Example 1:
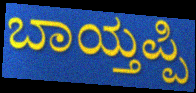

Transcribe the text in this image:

ಬಾಯ್ತಪ್ಪಿ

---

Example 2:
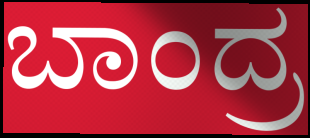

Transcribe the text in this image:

ಬಾಂದ್ರ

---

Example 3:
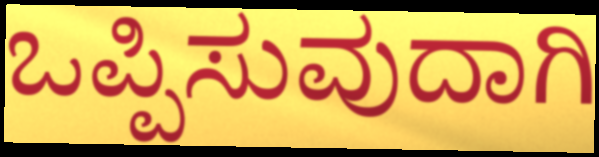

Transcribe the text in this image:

ಒಪ್ಪಿಸುವುದಾಗಿ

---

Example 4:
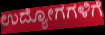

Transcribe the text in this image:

ಉದ್ಯೋಗಗಳಿಗೆ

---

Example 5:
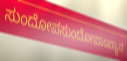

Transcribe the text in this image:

ಸುಂದೋಪಸುಂದೋಪಾಽಖ್ಯಾನ